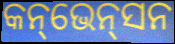
କନ୍‌ଭେନ୍‌ସନ